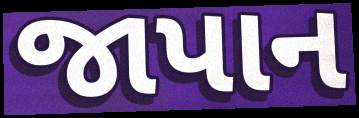
જાપાન